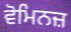
ਵੋਮਿਨਜ਼